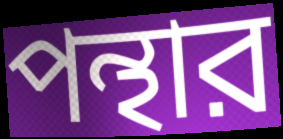
পন্থার